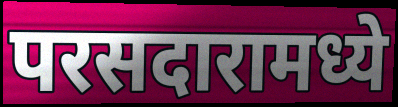
परसदारामध्ये